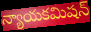
న్యాయకమిషన్